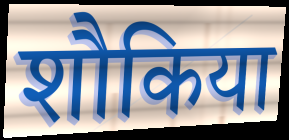
शौकिया